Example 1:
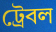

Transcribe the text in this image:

ট্রেবল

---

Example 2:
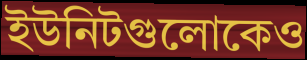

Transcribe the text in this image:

ইউনিটগুলোকেও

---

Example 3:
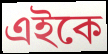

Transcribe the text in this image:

এইকে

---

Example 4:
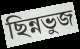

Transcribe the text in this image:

ছিন্নভুজ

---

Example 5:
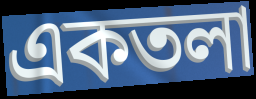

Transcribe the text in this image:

একতলা